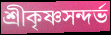
শ্রীকৃষ্ণসন্দর্ভ